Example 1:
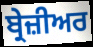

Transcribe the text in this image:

ਬ੍ਰੇਜ਼ੀਅਰ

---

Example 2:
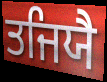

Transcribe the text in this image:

ਤਜਿਯੈ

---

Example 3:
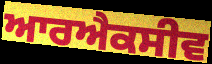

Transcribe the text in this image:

ਆਰਐਕਸੀਵ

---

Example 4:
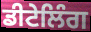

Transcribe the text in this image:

ਡੀਟੇਲਿੰਗ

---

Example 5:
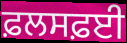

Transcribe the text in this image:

ਫ਼ਲਸਫ਼ਈ